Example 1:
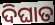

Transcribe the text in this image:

ଦିଘାତ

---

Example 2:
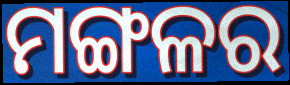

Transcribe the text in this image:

ମଙ୍ଗଳର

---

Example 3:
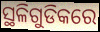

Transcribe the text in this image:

ସ୍ଥଳିଗୁଡିକରେ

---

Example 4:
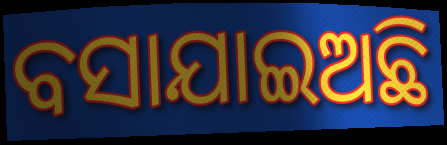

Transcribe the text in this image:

ବସାଯାଇଅଛି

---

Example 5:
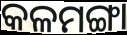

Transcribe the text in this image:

କଳମଙ୍ଗା